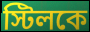
স্টিলকে